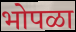
भोपळा